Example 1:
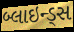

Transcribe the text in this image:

બ્લાઇન્ડ્સ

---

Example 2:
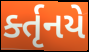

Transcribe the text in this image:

ર્ક્તૃનયે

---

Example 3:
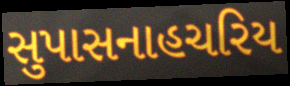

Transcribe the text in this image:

સુપાસનાહચરિય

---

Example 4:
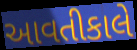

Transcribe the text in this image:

આવતીકાલે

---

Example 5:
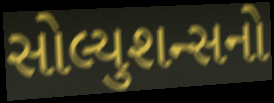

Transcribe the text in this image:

સોલ્યુશન્સનો